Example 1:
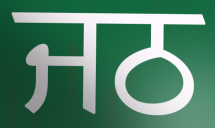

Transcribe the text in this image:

ਜਠ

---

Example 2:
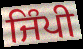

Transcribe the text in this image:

ਜਿੰਪੀ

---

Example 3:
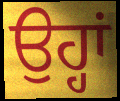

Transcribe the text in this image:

ਉਹ੍ਹਾਂ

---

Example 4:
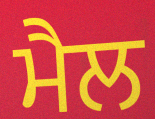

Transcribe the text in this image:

ਮੈਲ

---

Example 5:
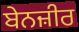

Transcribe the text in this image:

ਬੇਨਜ਼ੀਰ